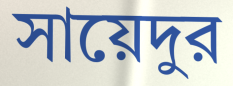
সায়েদুর